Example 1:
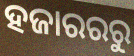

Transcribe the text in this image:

ହଜାରରରୁ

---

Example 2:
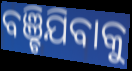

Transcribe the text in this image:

ବଞ୍ଚିଯିବାକୁ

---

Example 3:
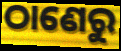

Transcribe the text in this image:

ଠାଣେରୁ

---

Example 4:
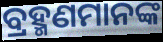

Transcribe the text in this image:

ବ୍ରହ୍ମଣମାନଙ୍କ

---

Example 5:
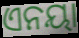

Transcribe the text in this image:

ଏନୟା